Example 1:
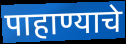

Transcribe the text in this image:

पाहाण्याचे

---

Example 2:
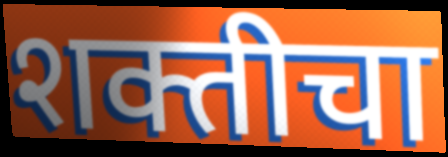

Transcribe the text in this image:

शक्‍तीचा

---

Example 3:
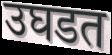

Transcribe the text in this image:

उघडत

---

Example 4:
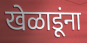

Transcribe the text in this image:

खेळाडूंना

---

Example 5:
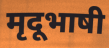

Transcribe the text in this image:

मृदूभाषी